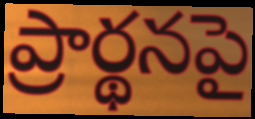
ప్రార్థనపై